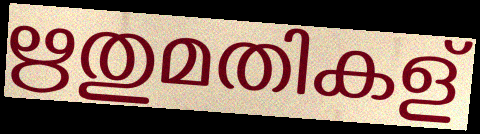
ഋതുമതികള്